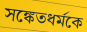
সঙ্কেতধর্মকে